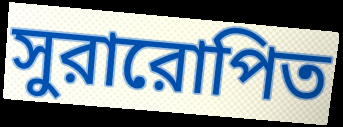
সুরারোপিত